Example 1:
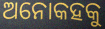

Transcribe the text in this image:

ଅନୋକହକୁ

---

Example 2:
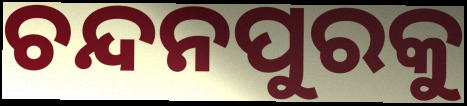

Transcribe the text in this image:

ଚନ୍ଦନପୁରକୁ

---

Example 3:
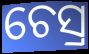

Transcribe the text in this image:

ଚେସ୍ର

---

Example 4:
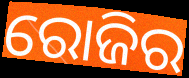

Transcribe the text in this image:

ରୋଜିର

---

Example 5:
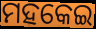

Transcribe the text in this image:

ମହକେଇ